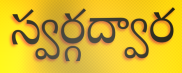
స్వర్గద్వార